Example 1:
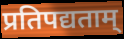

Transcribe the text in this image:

प्रतिपद्यताम्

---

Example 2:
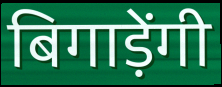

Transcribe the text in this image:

बिगाड़ेंगी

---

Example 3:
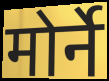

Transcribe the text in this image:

मोर्ने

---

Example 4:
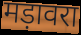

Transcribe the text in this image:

मड़ावरा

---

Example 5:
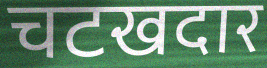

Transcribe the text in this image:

चटखदार